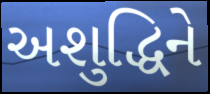
અશુદ્ધિને